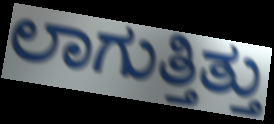
ಲಾಗುತ್ತಿತ್ತು